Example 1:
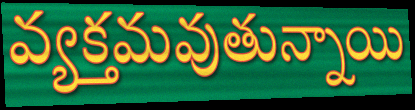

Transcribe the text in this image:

వ్యక్తమవుతున్నాయి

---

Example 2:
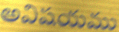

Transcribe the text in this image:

అవిషయము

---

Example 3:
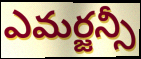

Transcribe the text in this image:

ఎమర్జన్సీ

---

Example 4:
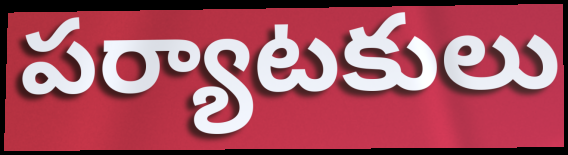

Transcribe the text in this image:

పర్యాటకులు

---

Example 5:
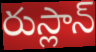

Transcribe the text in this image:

రుస్లాన్